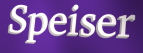
Speiser